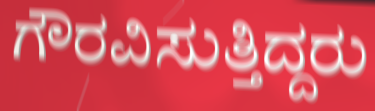
ಗೌರವಿಸುತ್ತಿದ್ದರು